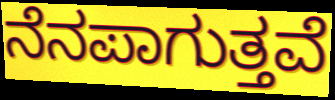
ನೆನಪಾಗುತ್ತವೆ